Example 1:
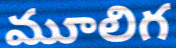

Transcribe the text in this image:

మూలిగ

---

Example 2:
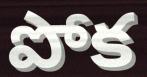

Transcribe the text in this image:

పోక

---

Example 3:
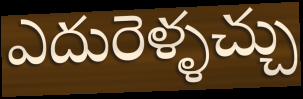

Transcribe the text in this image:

ఎదురెళ్ళచ్చు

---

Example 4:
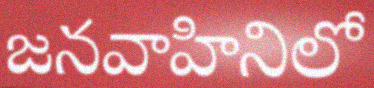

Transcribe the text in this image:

జనవాహినిలో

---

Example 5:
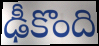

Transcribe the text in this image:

ఢీకొంది